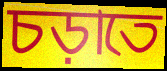
চড়াতে